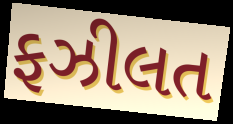
ફઝીલત